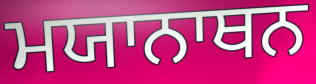
ਮਯਾਨਾਥਨ